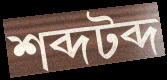
শব্দটব্দ